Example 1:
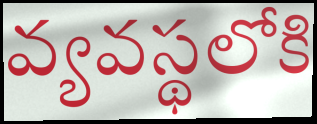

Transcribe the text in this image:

వ్యవస్థలోకి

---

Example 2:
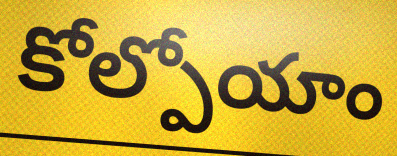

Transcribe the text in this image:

కోల్పోయాం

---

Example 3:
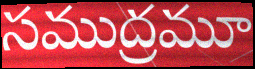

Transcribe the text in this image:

సముద్రమూ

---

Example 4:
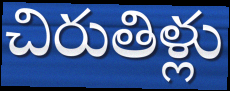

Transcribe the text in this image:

చిరుతిళ్లు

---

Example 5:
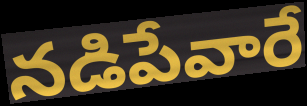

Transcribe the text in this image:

నడిపేవారే